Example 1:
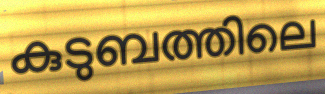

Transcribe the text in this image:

കുടുബത്തിലെ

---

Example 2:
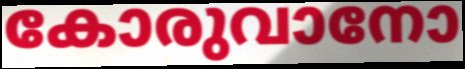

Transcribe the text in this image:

കോരുവാനോ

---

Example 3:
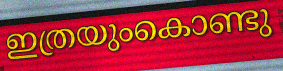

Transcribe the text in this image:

ഇത്രയുംകൊണ്ടു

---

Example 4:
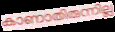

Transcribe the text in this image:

കാണാതിരുന്നില്ല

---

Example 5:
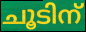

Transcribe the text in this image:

ചൂടിന്